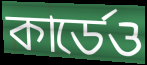
কার্ডেও